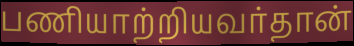
பணியாற்றியவர்தான்